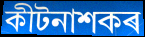
কীটনাশকৰ